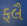
ફલૈ